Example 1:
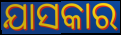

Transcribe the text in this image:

ଯାସକାର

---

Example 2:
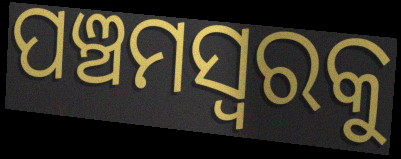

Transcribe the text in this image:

ପଞ୍ଚମସ୍ୱରକୁ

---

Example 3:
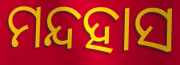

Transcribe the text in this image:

ମନ୍ଦହାସ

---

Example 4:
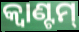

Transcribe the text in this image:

କ୍ୱାଣ୍ଟମ୍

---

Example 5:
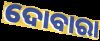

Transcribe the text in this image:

ଦୋବାରା